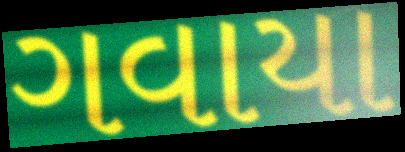
ગવાયા